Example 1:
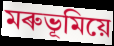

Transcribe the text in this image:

মৰুভূমিয়ে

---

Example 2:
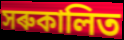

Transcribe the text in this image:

সৰুকালিত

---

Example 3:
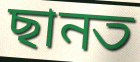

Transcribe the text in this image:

ছানত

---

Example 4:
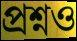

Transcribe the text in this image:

প্ৰশ্নও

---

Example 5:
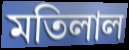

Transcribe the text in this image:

মতিলাল